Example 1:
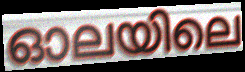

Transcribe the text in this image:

ഓലയിലെ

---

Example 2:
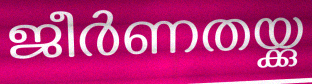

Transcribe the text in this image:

ജീർണതയ്ക്കു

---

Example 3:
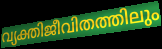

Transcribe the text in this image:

വ്യക്തിജീവിതത്തിലും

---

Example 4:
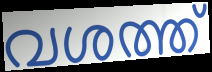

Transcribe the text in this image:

വശത്ത്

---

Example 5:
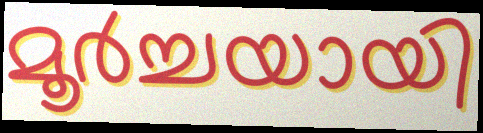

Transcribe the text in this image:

മൂർച്ചയായി